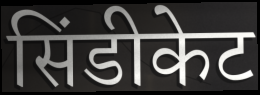
सिंडीकेट